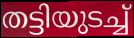
തട്ടിയുടച്ച്